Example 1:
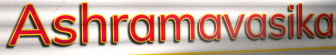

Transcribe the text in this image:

Ashramavasika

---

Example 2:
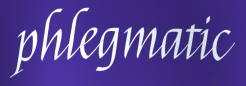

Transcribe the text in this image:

phlegmatic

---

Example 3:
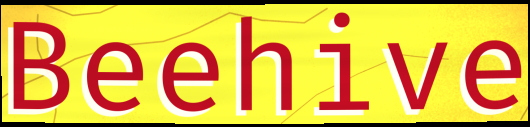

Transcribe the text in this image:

Beehive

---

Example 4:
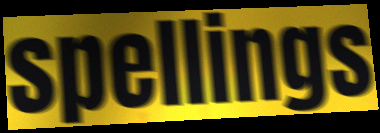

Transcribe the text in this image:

spellings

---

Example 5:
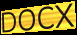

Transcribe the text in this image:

DOCX